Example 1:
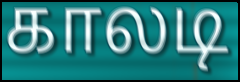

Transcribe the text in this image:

காலடி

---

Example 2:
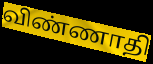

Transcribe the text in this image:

விண்ணாதி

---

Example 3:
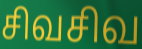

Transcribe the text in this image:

சிவசிவ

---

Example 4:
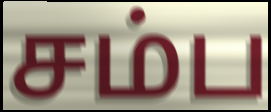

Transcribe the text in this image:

சம்ப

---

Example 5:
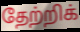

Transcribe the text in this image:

தேற்றிக்